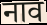
नाव